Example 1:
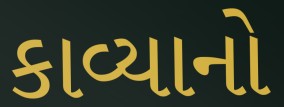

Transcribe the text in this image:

કાવ્યાનો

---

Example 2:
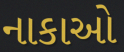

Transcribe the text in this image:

નાકાઓ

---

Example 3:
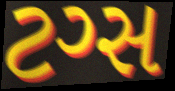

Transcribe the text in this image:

ટગ્સ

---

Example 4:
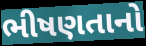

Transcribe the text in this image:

ભીષણતાનો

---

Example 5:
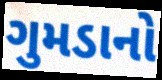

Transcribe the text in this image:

ગુમડાનો